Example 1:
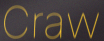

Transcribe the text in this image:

Craw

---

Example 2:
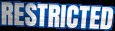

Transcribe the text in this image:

RESTRICTED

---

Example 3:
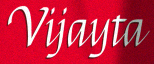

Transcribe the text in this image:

Vijayta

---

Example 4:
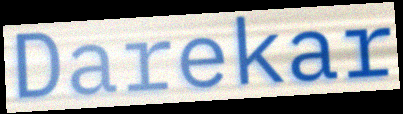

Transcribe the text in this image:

Darekar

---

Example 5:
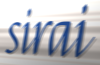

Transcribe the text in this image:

sirai